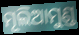
ମୂଲିଆମୁଣ୍ଡ